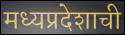
मध्यप्रदेशाची